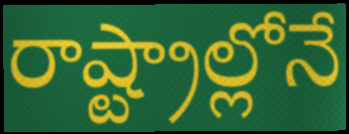
రాష్ట్రాల్లోనే